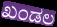
ಖಂಡಲ